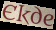
Ekde